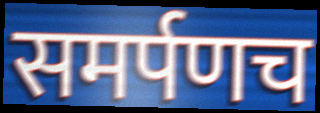
समर्पणच